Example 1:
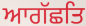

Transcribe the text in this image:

ਆਗੱਛਤਿ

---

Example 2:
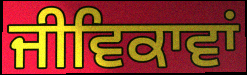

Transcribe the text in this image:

ਜੀਵਿਕਾਵਾਂ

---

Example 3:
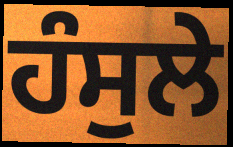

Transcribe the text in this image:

ਹੰਸੁਲੇ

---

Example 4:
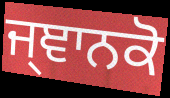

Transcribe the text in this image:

ਜ੍ਞਾਨਕੋ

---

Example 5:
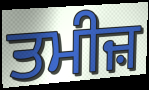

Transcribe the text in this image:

ਤਮੀਜ਼